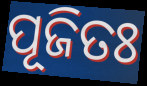
ପୂଜିତଃ